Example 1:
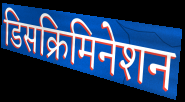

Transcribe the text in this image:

डिसक्रिमिनेशन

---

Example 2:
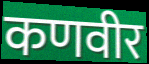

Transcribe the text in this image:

कणवीर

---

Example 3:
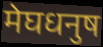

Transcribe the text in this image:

मेघधनुष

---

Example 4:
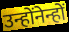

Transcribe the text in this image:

उन्होंनेन्हों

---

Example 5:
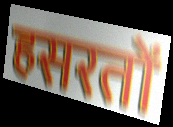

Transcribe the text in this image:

हसरतों